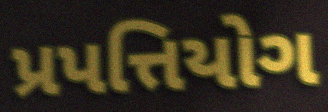
પ્રપત્તિયોગ